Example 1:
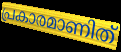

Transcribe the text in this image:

പ്രകാരമാണിത്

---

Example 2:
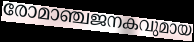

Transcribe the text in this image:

രോമാഞ്ചജനകവുമായ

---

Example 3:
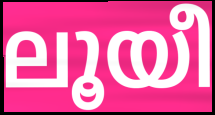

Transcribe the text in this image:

ലൂയീ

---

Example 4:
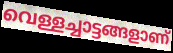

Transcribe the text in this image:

വെള്ളച്ചാട്ടങ്ങളാണ്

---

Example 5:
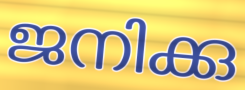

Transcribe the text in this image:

ജനിക്കു